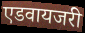
एडवायजरी